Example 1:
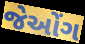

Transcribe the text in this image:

જેઓંગ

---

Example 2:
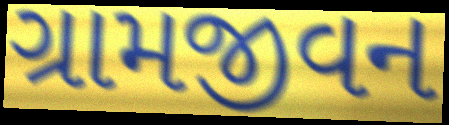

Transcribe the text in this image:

ગ્રામજીવન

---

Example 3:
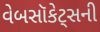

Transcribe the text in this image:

વેબસૉકેટ્સની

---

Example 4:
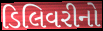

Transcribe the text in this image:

ડિલિવરીનો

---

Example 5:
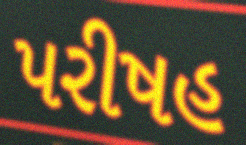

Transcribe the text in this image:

પરીષહ